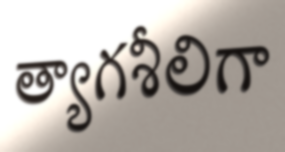
త్యాగశీలిగా